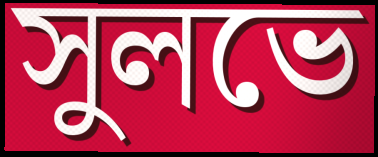
সুলভে